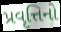
પ્રવૃત્તિનો